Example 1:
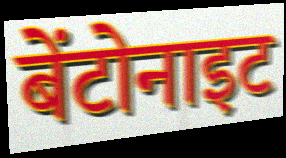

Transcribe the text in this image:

बेंटोनाइट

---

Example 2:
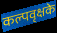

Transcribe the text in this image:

कल्पवृक्षके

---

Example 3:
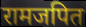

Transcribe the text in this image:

रामजपित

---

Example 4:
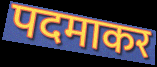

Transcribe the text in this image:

पदमाकर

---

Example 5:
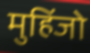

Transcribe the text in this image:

मुहिंजो